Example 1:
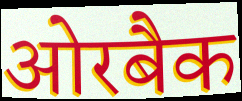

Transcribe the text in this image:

ओरबैक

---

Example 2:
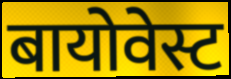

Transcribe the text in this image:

बायोवेस्ट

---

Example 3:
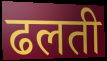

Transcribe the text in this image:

ढलती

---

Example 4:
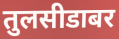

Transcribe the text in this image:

तुलसीडाबर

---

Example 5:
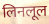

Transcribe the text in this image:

लिनलूल